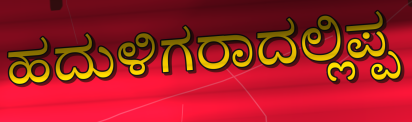
ಹದುಳಿಗರಾದಲ್ಲಿಪ್ಪ